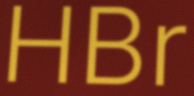
HBr